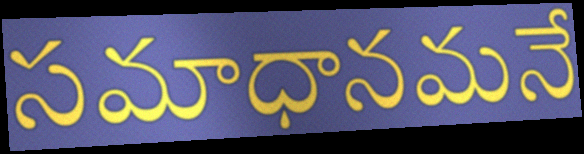
సమాధానమనే